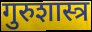
गुरुशास्त्र